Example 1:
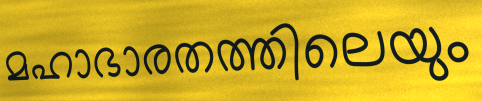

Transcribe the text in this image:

മഹാഭാരതത്തിലെയും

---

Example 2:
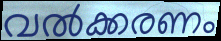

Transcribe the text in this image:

വൽക്കരണം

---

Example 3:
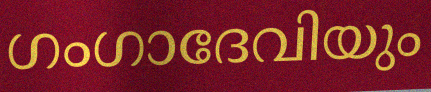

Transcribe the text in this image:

ഗംഗാദേവിയും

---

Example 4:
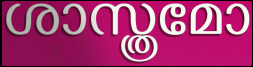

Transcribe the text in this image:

ശാസ്ത്രമോ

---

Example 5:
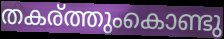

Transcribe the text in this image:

തകര്ത്തുംകൊണ്ടു